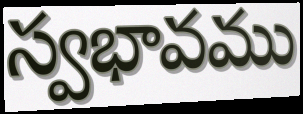
స్వభావము